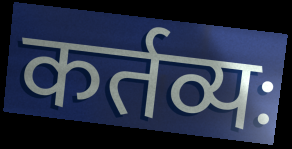
कर्तव्यः